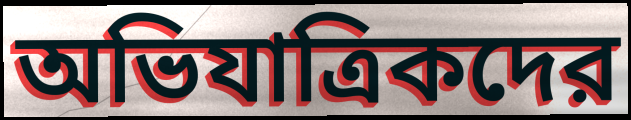
অভিযাত্রিকদের